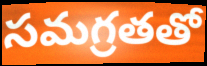
సమగ్రతతో